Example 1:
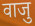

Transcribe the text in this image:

वाजु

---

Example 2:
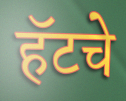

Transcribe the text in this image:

हॅटचे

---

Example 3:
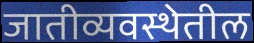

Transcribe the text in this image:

जातीव्यवस्थेतील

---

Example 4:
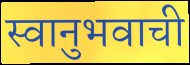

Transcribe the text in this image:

स्वानुभवाची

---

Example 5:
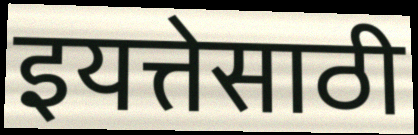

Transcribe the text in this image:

इयत्तेसाठी